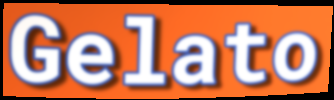
Gelato